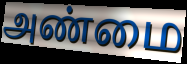
அண்மை